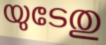
യുടേതു